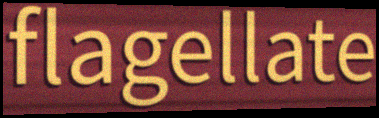
flagellate